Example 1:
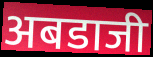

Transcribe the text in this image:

अबडाजी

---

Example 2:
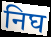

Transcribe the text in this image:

निघ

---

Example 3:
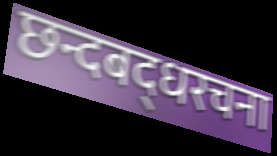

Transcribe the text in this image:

छन्दबद्धरचना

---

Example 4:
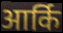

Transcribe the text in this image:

आर्कि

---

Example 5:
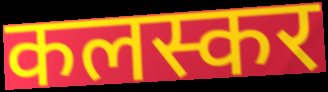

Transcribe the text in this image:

कलस्कर